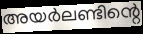
അയർലണ്ടിന്റെ